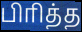
பிரித்த